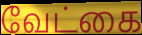
வேட்கை